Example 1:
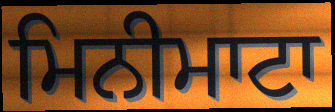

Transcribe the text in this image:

ਮਿਨੀਮਾਟਾ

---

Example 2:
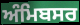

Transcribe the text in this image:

ਅੰਮਿਬਸਰ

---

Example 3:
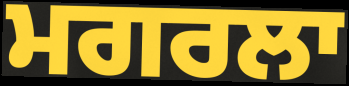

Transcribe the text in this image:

ਮਗਰਲਾ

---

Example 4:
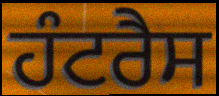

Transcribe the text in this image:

ਹੰਟਰੈਸ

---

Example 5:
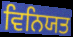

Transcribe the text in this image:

ਵਿਨਿਯਤ